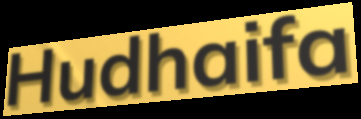
Hudhaifa